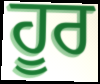
ਹੂਰ